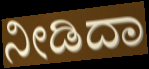
ನೀಡಿದಾ